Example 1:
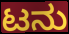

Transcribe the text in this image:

ಟನು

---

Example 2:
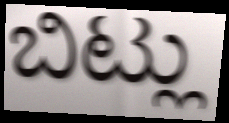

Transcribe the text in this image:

ಬಿಟ್ಲು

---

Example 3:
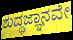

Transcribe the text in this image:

ಶುದ್ಧಜ್ಞಾನವೇ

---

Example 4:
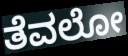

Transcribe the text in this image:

ತೆವಲೋ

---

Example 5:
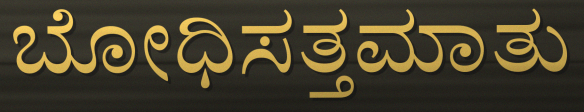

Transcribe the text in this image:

ಬೋಧಿಸತ್ತಮಾತು